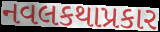
નવલકથાપ્રકાર